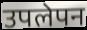
उपलेपन